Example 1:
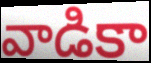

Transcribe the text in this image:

వాడికా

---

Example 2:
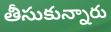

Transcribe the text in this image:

తీసుకున్నారు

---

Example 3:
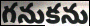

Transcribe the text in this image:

గనుకను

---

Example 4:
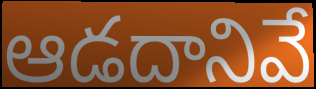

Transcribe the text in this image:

ఆడదానివే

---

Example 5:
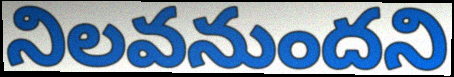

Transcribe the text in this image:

నిలవనుందని